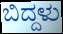
ಬಿದ್ದಳು